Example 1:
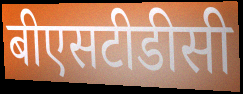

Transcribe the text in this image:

बीएसटीडीसी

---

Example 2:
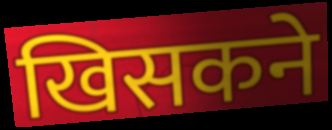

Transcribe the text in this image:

खिसकने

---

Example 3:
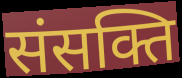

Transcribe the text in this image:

संसक्ति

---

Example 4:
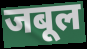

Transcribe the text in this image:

जबूल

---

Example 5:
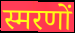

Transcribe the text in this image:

स्मरणों